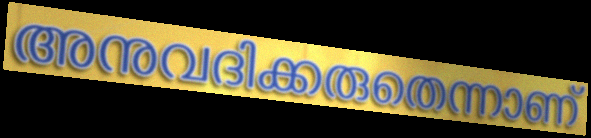
അനുവദിക്കരുതെന്നാണ്